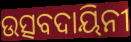
ଉତ୍ସବଦାୟିନୀ